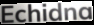
Echidna